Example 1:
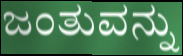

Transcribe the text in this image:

ಜಂತುವನ್ನು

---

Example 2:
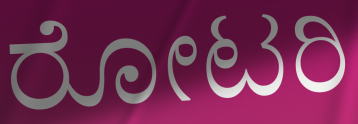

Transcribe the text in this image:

ರೋಟರಿ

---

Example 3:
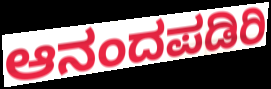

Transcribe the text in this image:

ಆನಂದಪಡಿರಿ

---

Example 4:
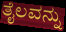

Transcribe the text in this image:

ತೈಲವನ್ನು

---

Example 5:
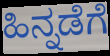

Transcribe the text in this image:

ಹಿನ್ನಡೆಗೆ